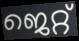
ജെറ്റ്